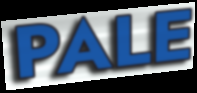
PALE